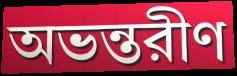
অভন্তরীণ